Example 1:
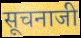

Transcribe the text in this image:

सूचनाजी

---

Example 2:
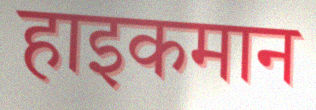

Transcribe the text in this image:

हाइकमान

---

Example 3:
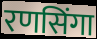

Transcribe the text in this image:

रणसिंगा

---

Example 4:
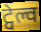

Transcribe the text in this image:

ट्वेल्व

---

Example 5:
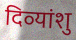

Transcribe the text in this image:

दिव्‍यांशु